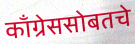
काँग्रेससोबतचे